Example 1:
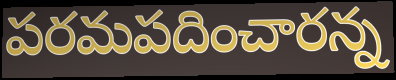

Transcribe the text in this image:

పరమపదించారన్న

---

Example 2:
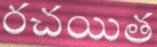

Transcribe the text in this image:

రచయిత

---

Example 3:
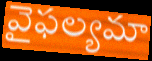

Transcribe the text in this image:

వైఫల్యమా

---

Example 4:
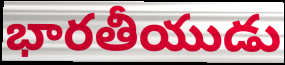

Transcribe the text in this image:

భారతీయుడు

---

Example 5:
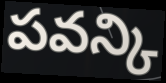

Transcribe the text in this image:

పవన్కి